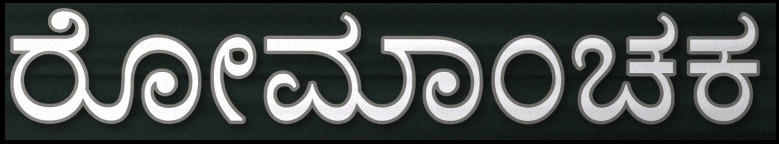
ರೋಮಾಂಚಕ